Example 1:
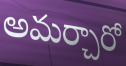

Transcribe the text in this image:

అమర్చారో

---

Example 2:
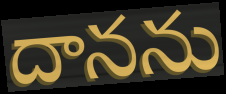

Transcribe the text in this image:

దానను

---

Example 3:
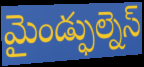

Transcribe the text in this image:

మైండ్ఫుల్నెస్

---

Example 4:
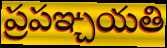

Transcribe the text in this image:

ప్రపఞ్చయతి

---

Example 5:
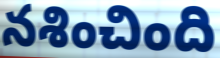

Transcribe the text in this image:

నశించింది